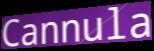
Cannula